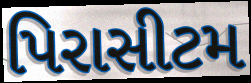
પિરાસીટમ